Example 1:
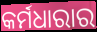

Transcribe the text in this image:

କର୍ମଧାରାର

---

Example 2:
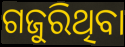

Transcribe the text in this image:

ଗଜୁରିଥିବା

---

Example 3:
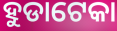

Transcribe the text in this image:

ହୁଡାଟେକା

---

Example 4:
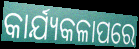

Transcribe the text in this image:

କାର୍ଯ୍ୟକଳାପରେ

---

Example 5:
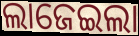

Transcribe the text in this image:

ଲାଜେଇଲା